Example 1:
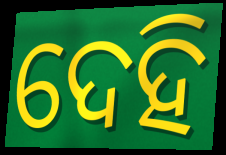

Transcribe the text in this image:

ଦେହି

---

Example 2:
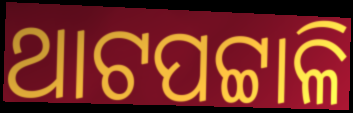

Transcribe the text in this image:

ଥାଟପଟ୍ଟାଳି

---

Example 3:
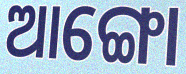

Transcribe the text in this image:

ଆଙ୍ଗୋ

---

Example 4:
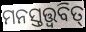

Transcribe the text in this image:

ମନସ୍ତତ୍ତ୍ଵବିତ୍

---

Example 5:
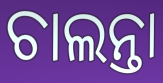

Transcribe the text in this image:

ଚାଲନ୍ତା